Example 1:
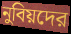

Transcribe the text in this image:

নুবিয়দের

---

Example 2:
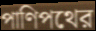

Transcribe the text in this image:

পাণিপথের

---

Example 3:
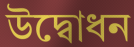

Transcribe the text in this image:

উদ্বোধন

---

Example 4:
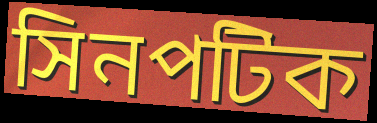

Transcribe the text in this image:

সিনপটিক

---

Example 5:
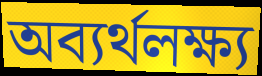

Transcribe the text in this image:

অব্যর্থলক্ষ্য